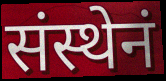
संस्थेनं